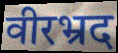
वीरभ्रद